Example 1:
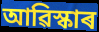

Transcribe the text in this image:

আৱিস্কাৰ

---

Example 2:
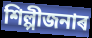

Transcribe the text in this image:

শিল্পীজনাৰ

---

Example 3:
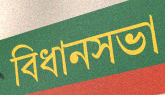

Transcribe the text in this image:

বিধানসভা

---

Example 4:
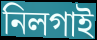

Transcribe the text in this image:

নিলগাই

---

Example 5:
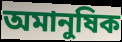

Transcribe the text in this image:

অমানুষিক